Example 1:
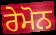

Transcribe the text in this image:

ਰੇਮੋਨ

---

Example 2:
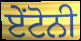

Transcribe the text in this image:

ਏਂਟੋਨੀ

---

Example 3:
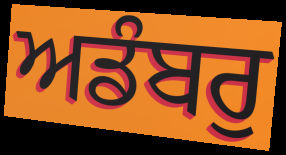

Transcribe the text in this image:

ਅਡੰਬਰੁ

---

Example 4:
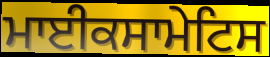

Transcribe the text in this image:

ਮਾਈਕਸਾਮੇਟਿਸ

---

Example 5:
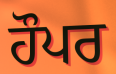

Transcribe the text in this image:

ਹੌਪਰ